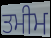
ਤਮੀਮ